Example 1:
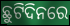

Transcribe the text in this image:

ଛୁଟିଦିନରେ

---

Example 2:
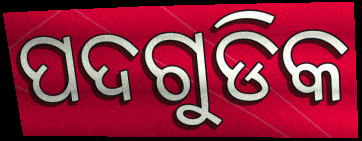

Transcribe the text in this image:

ପଦଗୁଡିକ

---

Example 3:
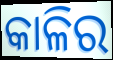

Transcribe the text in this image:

କାଳିର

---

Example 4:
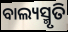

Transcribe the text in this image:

ବାଲ୍ୟସ୍ମୃତି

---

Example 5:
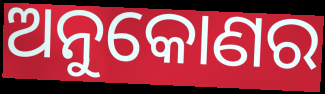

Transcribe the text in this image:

ଅନୁକୋଣର